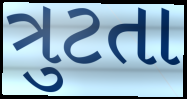
ત્રુટતા